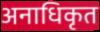
अनाधिकृत